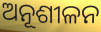
ଅନୂଶୀଳନ